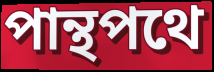
পান্থপথে